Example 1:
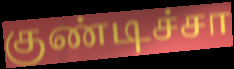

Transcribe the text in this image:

குண்டிச்சா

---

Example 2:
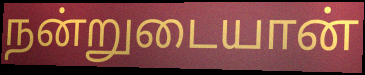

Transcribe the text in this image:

நன்றுடையான்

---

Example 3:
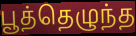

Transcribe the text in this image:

பூத்தெழுந்த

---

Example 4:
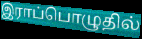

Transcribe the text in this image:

இராப்பொழுதில்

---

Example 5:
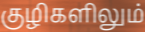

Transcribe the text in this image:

குழிகளிலும்